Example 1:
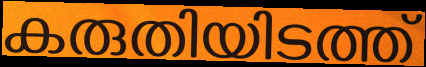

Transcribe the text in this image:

കരുതിയിടത്ത്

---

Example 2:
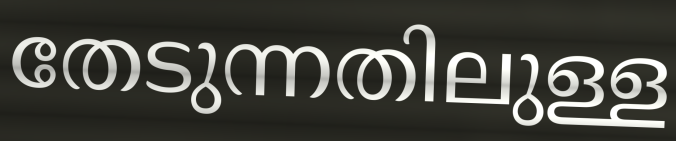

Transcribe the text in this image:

തേടുന്നതിലുള്ള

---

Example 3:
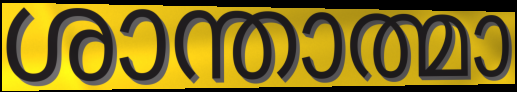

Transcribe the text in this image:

ശാന്താത്മാ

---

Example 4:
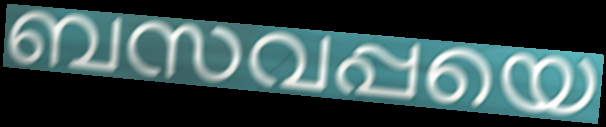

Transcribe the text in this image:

ബസവപ്പയെ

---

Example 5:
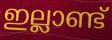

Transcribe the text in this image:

ഇല്ലാണ്ട്